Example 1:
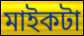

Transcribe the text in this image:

মাইকটা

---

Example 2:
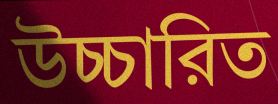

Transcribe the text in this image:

উচ্চারিত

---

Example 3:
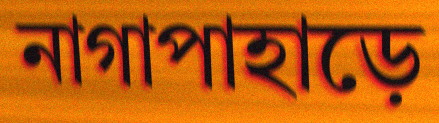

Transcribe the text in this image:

নাগাপাহাড়ে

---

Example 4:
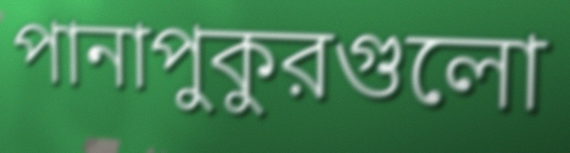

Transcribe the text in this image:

পানাপুকুরগুলো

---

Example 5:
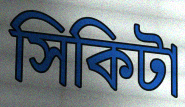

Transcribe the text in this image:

সিকিটা